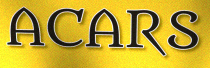
ACARS